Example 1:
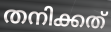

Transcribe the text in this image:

തനിക്കത്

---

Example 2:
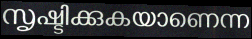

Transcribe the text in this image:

സൃഷ്ടിക്കുകയാണെന്ന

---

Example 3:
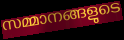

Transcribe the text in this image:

സമ്മാനങ്ങളുടെ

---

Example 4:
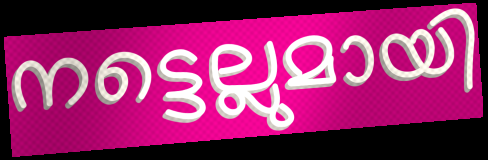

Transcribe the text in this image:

നട്ടെല്ലുമായി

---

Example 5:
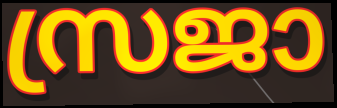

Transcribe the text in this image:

സ്രജാ